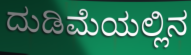
ದುಡಿಮೆಯಲ್ಲಿನ